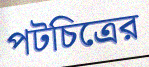
পটচিত্রের